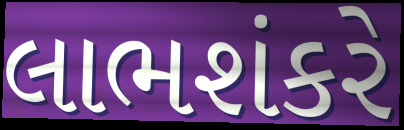
લાભશંકરે